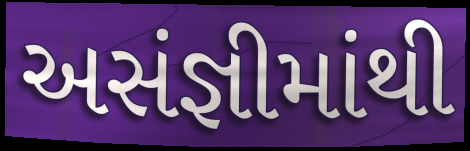
અસંજ્ઞીમાંથી